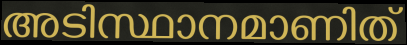
അടിസ്ഥാനമാണിത്